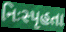
નિઃસ્પૃહતા